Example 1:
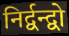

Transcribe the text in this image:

निर्द्वन्द्वो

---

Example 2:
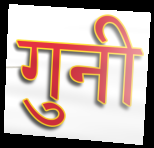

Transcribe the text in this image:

गुनी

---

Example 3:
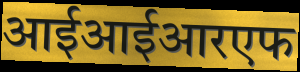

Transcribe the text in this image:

आईआईआरएफ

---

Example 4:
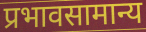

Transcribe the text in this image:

प्रभावसामान्य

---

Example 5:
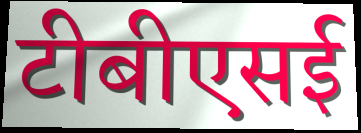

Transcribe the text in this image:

टीबीएसई